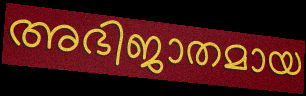
അഭിജാതമായ